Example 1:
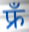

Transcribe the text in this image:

फ्रँ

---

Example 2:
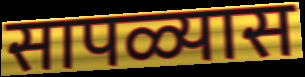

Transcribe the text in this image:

सापळ्यास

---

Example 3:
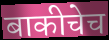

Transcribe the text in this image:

बाकीचेच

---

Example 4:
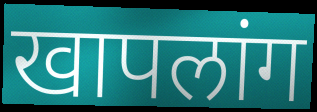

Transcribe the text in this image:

खापलांग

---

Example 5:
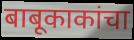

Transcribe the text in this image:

बाबूकाकांचा